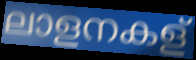
ലാളനകള്